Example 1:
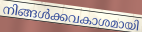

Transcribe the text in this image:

നിങ്ങൾക്കവകാശമായി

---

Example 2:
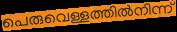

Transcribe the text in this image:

പെരുവെള്ളത്തിൽനിന്ന്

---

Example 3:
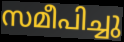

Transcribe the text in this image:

സമീപിച്ചു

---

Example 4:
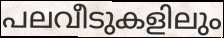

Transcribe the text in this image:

പലവീടുകളിലും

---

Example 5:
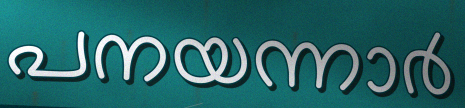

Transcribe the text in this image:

പനയന്നാർ